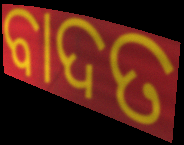
ବାଦତ